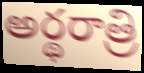
అర్థరాత్రి